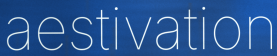
aestivation